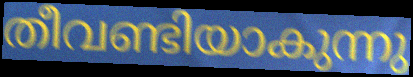
തീവണ്ടിയാകുന്നു